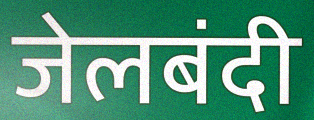
जेलबंदी